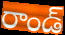
రాండ్